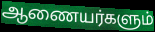
ஆணையர்களும்